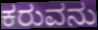
ಕರುವನು